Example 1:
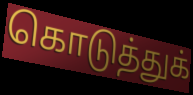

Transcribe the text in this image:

கொடுத்துக்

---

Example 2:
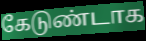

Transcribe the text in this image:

கேடுண்டாக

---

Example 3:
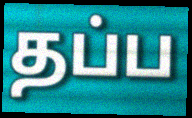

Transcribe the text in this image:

தப்ப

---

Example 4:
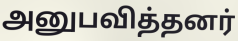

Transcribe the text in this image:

அனுபவித்தனர்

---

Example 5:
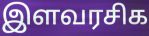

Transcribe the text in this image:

இளவரசிக